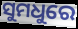
ସୁମଧୁରେ